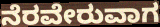
ನೆರವೇರುವಾಗ